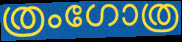
ത്രംഗോത്ര